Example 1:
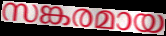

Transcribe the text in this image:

സങ്കരമായ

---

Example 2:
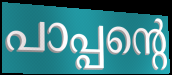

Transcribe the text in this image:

പാപ്പന്റെ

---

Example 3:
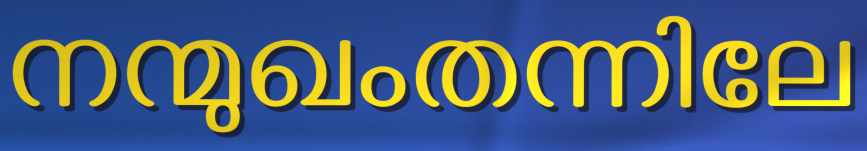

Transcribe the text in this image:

നന്മുഖംതന്നിലേ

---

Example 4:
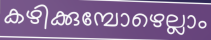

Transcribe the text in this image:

കഴിക്കുമ്പോഴെല്ലാം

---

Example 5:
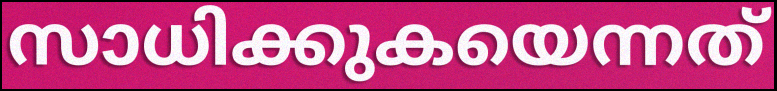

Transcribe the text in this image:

സാധിക്കുകയെന്നത്